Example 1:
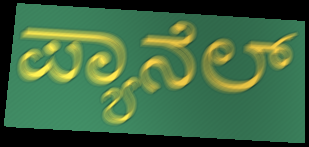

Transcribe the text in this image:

ಪ್ಯಾನೆಲ್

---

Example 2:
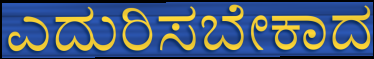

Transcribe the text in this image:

ಎದುರಿಸಬೇಕಾದ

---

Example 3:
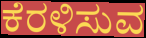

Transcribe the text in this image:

ಕೆರಳಿಸುವ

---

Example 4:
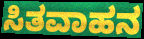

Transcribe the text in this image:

ಸಿತವಾಹನ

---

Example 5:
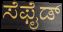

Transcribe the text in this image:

ಸೆಫೈಡ್